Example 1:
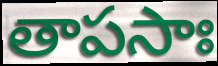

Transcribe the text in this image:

తాపసాః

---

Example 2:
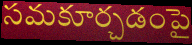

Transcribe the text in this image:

సమకూర్చడంపై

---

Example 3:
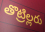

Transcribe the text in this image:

తొట్రిల్లరు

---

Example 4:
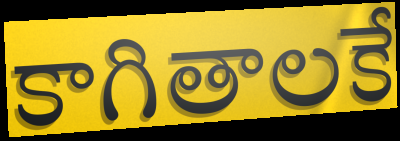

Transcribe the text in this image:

కాగితాలకే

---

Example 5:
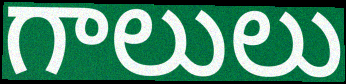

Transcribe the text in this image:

గాలులు